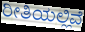
ರೀತಿಯಲ್ಲಿವೆ